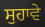
ਸੁਹਾਵੇ